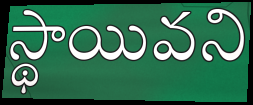
స్థాయివని